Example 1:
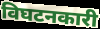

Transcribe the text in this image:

विघटनकारी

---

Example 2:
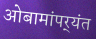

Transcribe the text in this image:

ओबामांपर्यंत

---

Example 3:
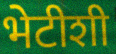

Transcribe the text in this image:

भेटीशी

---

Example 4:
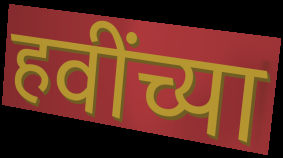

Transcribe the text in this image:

हवींच्या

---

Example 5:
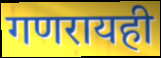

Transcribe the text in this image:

गणरायही